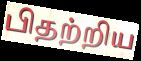
பிதற்றிய